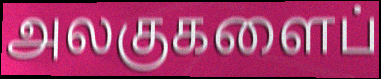
அலகுகளைப்